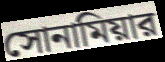
সোনামিয়ার